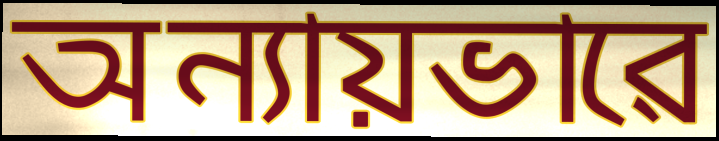
অন্যায়ভাৱে